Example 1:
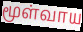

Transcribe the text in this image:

மூள்வாய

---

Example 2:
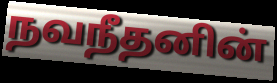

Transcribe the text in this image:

நவநீதனின்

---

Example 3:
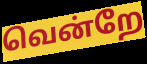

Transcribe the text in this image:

வென்றே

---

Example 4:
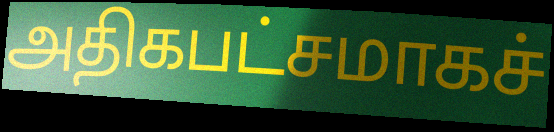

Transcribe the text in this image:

அதிகபட்சமாகச்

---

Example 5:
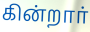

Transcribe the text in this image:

கின்றார்